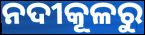
ନଦୀକୂଳରୁ